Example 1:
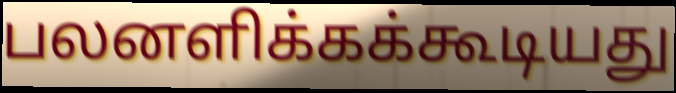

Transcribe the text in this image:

பலனளிக்கக்கூடியது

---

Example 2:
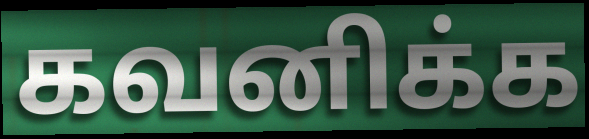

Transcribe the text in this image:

கவனிக்க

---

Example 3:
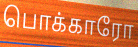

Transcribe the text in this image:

பொக்காரோ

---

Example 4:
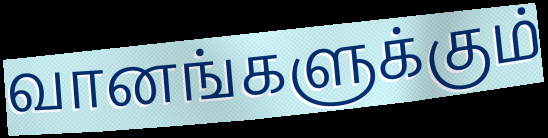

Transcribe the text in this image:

வானங்களுக்கும்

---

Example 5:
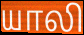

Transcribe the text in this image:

யாலி